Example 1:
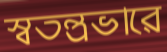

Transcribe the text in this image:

স্বতন্ত্ৰভাৱে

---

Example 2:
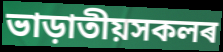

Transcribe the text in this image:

ভাড়াতীয়সকলৰ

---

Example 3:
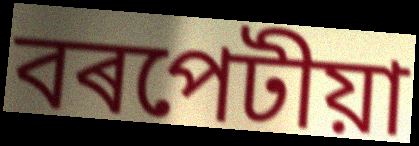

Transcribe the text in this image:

বৰপেটীয়া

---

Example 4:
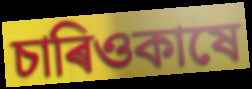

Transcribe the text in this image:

চাৰিওকাষে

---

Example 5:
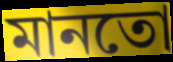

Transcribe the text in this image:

মানতো